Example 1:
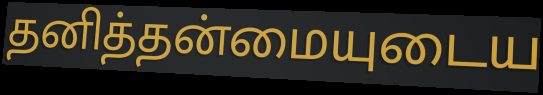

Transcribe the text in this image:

தனித்தன்மையுடைய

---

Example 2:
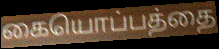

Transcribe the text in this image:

கையொப்பத்தை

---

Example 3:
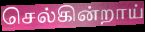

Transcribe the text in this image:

செல்கின்றாய்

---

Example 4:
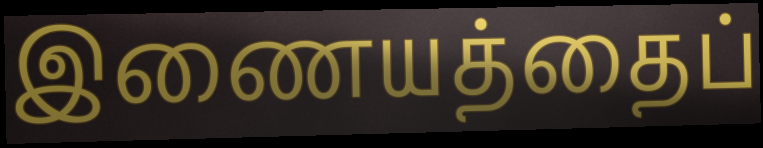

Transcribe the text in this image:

இணையத்தைப்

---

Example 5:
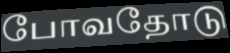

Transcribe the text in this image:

போவதோடு